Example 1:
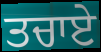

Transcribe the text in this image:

ਤਚਾਏ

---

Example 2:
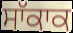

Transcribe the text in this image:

ਸਾੱਕਾਕ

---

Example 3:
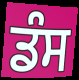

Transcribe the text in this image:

ਡੰਸ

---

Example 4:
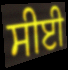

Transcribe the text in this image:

ਸੀਈ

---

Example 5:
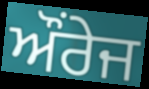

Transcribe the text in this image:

ਔਂਰੇਜ